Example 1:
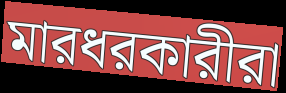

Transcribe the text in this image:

মারধরকারীরা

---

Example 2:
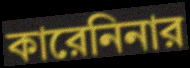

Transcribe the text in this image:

কারেনিনার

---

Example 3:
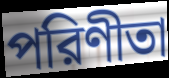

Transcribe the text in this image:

পরিণীতা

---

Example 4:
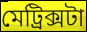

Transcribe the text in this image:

মেট্রিক্সটা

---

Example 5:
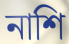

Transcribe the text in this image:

নাশি